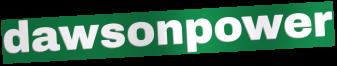
dawsonpower